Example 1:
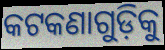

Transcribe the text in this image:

କଟକଣାଗୁଡ଼ିକୁ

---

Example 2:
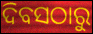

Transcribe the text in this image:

ଦିବସଠାରୁ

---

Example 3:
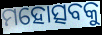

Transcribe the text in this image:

ମହୋତ୍ସବକୁ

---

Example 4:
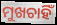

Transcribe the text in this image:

ମୁଖଚାହିଁ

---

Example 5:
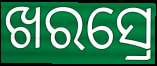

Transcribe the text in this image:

ଖରସ୍ରେ